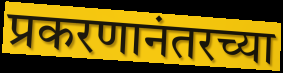
प्रकरणानंतरच्या